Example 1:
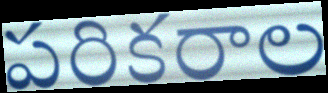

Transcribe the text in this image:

పరికరాల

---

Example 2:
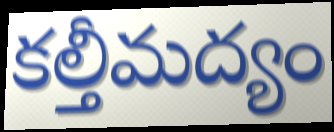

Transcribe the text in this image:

కల్తీమద్యం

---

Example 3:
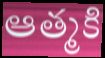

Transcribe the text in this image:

ఆత్మకి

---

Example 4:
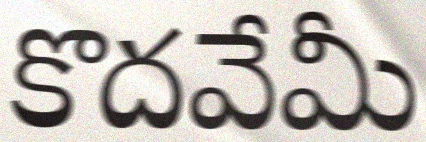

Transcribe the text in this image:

కొదవేమీ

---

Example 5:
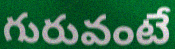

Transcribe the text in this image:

గురువంటే